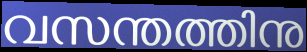
വസന്തത്തിനു